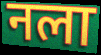
नला